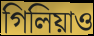
গিলিয়াও